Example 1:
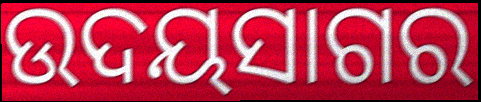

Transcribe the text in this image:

ଉଦୟସାଗର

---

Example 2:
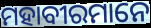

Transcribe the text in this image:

ମହାବୀରମାନେ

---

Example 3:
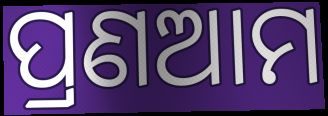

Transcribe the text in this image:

ପ୍ରଣଆମ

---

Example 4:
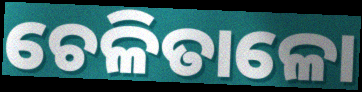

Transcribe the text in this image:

ଚେଳିତାଳୋ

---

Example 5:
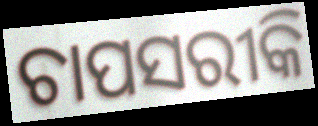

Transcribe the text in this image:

ଚାପସରୀକି